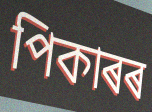
পিকাৰৰ